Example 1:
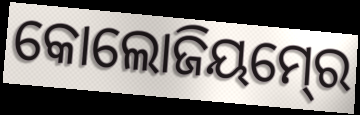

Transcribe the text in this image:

କୋଲୋଜିୟମ୍‍ରେ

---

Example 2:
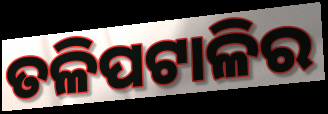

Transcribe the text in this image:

ତଳିପଟାଳିର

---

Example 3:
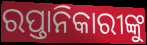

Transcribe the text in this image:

ରପ୍ତାନିକାରୀଙ୍କୁ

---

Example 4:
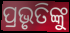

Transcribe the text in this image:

ପ୍ରଭୃତିଙ୍କୁ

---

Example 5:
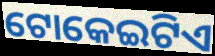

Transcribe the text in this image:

ଟୋକେଇଟିଏ